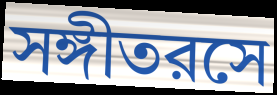
সঙ্গীতরসে